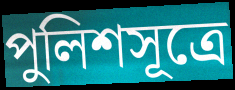
পুলিশসূত্রে